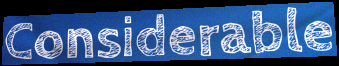
Considerable